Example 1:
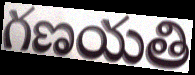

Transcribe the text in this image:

గణయతి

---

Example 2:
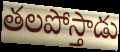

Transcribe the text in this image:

తలపోస్తాడు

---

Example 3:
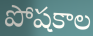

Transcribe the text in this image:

పోషకాల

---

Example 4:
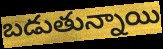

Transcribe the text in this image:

బడుతున్నాయి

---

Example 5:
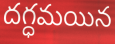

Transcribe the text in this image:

దగ్ధమయిన